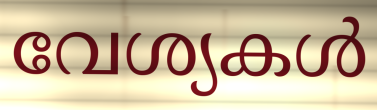
വേശ്യകൾ